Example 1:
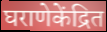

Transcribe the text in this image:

घराणेकेंद्रित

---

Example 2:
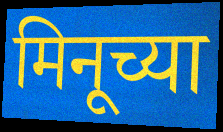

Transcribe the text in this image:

मिनूच्या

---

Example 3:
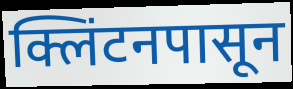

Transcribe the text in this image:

क्लिंटनपासून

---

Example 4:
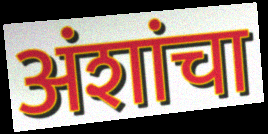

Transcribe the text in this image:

अंशांचा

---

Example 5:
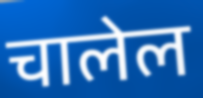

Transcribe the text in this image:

चालेल